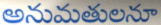
అనుమతులనూ